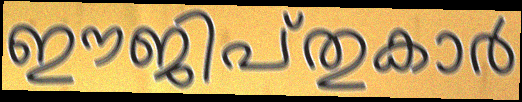
ഈജിപ്‌തുകാർ